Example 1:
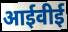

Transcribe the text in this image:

आईवीई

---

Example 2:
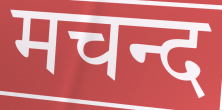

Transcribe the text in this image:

मचन्द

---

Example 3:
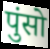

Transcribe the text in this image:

पुंसो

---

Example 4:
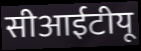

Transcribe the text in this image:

सीआईटीयू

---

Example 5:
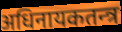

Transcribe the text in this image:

अधिनायकतन्त्र